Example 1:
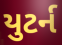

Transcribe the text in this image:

યુટર્ન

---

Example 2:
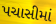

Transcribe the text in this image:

પચાસીમાં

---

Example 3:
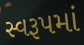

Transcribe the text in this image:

સ્વરૂપમાં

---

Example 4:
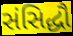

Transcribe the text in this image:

સંસિદ્ધૌ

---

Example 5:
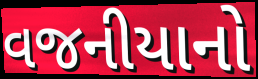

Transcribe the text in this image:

વજનીયાનો